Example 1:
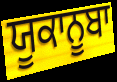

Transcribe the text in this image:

ਯੂਕਾਨੂਬਾ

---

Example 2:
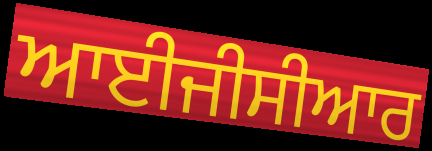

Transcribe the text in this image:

ਆਈਜੀਸੀਆਰ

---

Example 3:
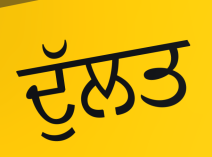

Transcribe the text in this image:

ਦੁੱਲਤ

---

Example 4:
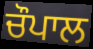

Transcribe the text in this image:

ਚੌਪਾਲ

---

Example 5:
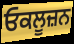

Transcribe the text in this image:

ਓਕਲੂਜ਼ਨ